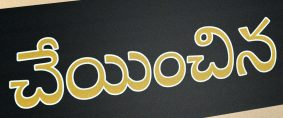
చేయించిన